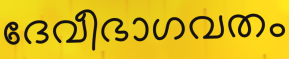
ദേവീഭാഗവതം